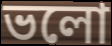
ভলো